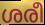
ശരീ